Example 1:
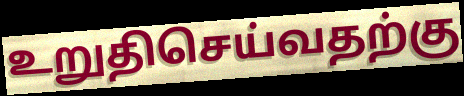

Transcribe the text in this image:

உறுதிசெய்வதற்கு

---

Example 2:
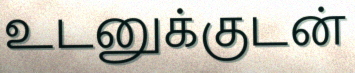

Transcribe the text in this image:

உடனுக்குடன்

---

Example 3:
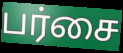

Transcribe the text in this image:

பர்சை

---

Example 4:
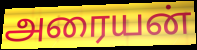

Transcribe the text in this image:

அரையன்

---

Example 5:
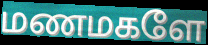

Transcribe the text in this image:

மணமகளே